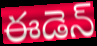
ఈడెన్